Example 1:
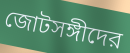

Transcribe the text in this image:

জোটসঙ্গীদের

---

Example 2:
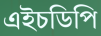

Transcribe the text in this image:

এইচডিপি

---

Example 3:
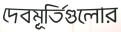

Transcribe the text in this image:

দেবমূর্তিগুলোর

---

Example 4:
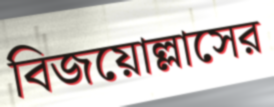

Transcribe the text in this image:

বিজয়োল্লাসের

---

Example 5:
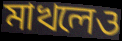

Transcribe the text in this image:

মাখলেও